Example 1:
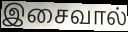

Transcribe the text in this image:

இசைவால்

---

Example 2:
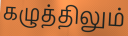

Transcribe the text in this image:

கழுத்திலும்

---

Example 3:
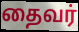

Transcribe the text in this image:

தைவர்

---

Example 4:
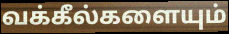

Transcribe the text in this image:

வக்கீல்களையும்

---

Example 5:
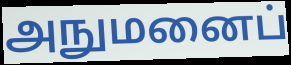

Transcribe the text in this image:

அநுமனைப்